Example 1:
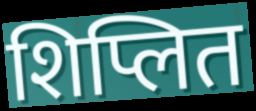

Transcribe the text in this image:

शिप्लित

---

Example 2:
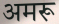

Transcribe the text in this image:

अमरू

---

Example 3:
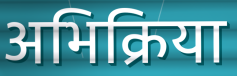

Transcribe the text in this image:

अभिक्रिया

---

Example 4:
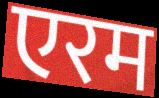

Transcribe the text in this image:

एरम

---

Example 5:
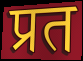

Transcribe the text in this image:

प्रत